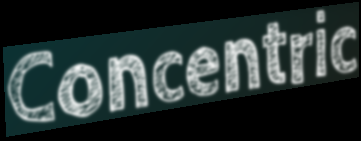
Concentric